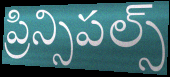
ప్రిన్సిపల్స్